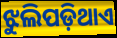
ଝୁଲିପଡ଼ିଥାଏ